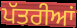
ਪੱਤਰੀਆਂ